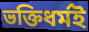
ভক্তিধৰ্মই